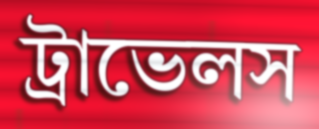
ট্রাভেলস